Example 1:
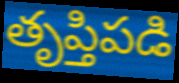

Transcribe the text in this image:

తృప్తిపడి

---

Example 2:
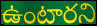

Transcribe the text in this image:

ఉంటారని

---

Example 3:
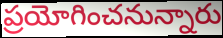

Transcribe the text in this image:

ప్రయోగించనున్నారు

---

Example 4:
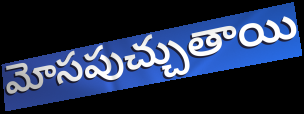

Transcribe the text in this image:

మోసపుచ్చుతాయి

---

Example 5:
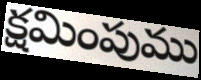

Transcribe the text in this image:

క్షమింపుము